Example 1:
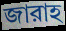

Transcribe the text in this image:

জারাহ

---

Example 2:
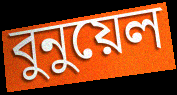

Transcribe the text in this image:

বুনুয়েল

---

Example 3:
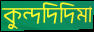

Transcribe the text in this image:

কুন্দদিদিমা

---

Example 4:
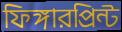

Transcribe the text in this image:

ফিঙ্গারপ্রিন্ট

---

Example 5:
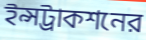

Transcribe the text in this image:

ইন্সট্রাকশনের